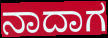
ನಾದಾಗ